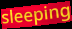
sleeping